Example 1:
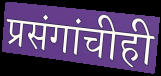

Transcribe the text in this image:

प्रसंगांचीही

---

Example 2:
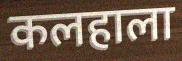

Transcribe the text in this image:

कलहाला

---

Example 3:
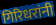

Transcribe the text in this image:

गिरिधरांनी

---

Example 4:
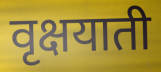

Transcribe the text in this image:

वृक्षयाती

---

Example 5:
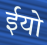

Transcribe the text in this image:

ईयो